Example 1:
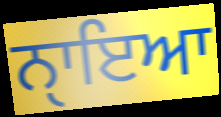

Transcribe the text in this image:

ਨੑਾਇਆ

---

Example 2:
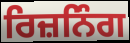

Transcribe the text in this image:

ਰਿਜ਼ਨਿੰਗ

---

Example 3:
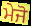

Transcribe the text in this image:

ਮੇਜੋ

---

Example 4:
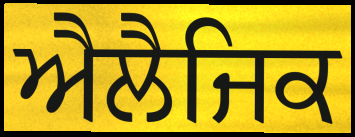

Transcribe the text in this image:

ਐਲੈਜਿਕ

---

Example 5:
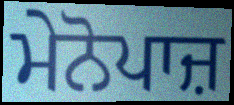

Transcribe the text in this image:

ਮੇਨੋਪਾਜ਼